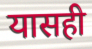
यासही